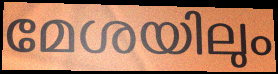
മേശയിലും